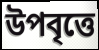
উপবৃত্তে